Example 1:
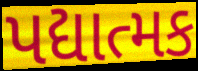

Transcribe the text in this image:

પદ્યાત્મક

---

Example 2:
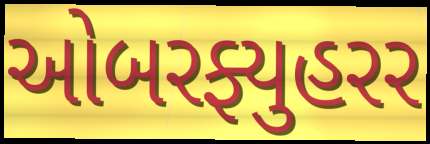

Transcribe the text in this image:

ઓબરફ્યુહરર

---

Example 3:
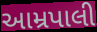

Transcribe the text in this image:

આમ્રપાલી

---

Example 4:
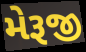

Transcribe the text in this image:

મેરૂજી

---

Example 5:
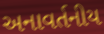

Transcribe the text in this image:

અનાવર્તનીય